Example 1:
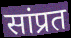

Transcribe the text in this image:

सांप्रत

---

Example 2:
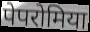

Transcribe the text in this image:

पेपरोमिया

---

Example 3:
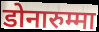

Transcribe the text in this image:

डोनारुम्मा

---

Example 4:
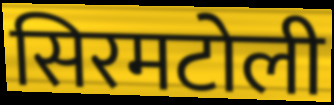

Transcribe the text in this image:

सिरमटोली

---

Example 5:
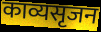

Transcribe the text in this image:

काव्यसृजन